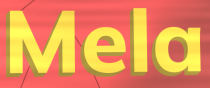
Mela